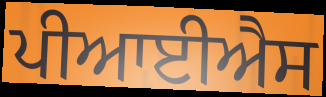
ਪੀਆਈਐਸ